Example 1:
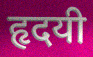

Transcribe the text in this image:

हृदयी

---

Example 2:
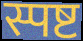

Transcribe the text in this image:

स्पष्ट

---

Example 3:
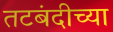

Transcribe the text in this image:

तटबंदीच्या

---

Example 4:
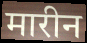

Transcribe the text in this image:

मारीन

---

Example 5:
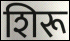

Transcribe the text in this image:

शिरू